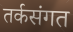
तर्कसंगत